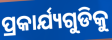
ପ୍ରକାର୍ଯ୍ୟଗୁଡିକୁ